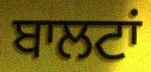
ਬਾਲਟਾਂ